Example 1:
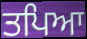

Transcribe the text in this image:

ਤਪਿਆ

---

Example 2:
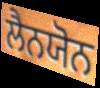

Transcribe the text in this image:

ਲੈਨਯੋਨ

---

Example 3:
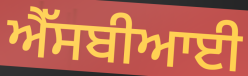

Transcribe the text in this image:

ਐੱਸਬੀਆਈ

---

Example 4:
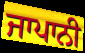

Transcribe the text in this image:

ਜਾਪਾਨੀ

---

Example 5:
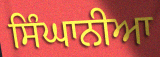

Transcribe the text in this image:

ਸਿੰਘਾਨੀਆ